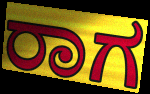
ರಾಗ